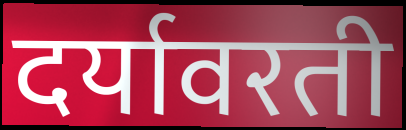
दर्यावरती